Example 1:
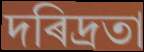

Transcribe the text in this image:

দৰিদ্ৰতা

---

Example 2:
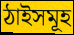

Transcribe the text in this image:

ঠাইসমূহ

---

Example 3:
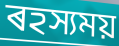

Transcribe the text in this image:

ৰহস্যময়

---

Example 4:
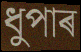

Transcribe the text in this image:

ধুপাৰ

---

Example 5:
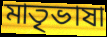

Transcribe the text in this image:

মাতৃভাষা